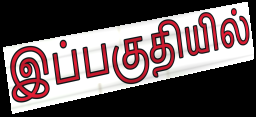
இப்பகுதியில்